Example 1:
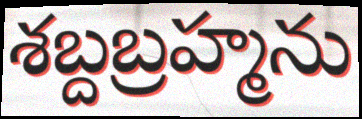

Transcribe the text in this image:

శబ్దబ్రహ్మను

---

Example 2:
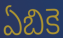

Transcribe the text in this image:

ఏబికె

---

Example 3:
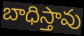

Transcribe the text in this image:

బాధిస్తావు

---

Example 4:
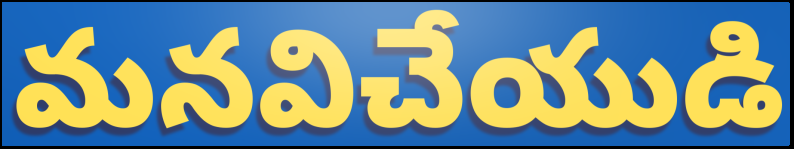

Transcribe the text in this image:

మనవిచేయుడి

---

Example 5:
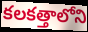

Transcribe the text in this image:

కలకత్తాలోని